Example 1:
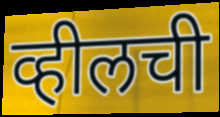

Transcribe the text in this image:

व्हीलची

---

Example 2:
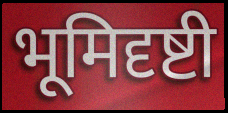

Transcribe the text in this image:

भूमिदृष्टी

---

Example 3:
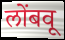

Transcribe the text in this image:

लोंबवू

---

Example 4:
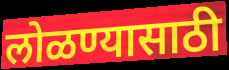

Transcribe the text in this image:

लोळण्यासाठी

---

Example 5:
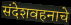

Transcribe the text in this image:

संदेशवहनाचे